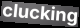
clucking